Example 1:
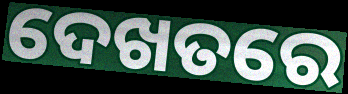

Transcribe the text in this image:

ଦେଖତରେ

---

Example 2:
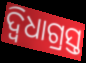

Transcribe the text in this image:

ଦ୍ୱିଧାଗ୍ରସ୍ତ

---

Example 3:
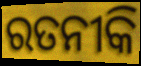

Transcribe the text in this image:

ରତନୀକି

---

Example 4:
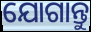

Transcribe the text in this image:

ଯୋଗାନ୍ତୁ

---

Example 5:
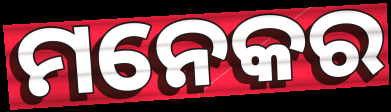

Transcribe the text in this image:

ମନେକର